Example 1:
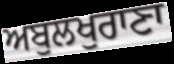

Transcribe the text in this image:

ਅਬੁਲਖੁਰਾਣਾ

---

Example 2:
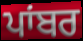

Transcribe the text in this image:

ਪਾਂਬਰ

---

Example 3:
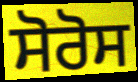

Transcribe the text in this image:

ਸੋਰੋਸ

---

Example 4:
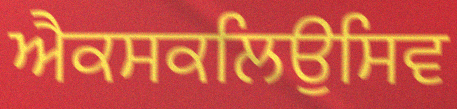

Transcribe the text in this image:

ਐਕਸਕਲਿਉਸਿਵ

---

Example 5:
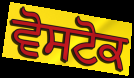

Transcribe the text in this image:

ਵੋਸਟੋਕ